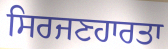
ਸਿਰਜਣਹਾਰਤਾ